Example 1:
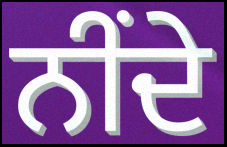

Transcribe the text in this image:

ਨੀਂਦੇ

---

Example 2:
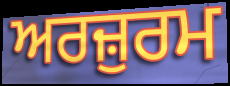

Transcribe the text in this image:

ਅਰਜ਼ੁਰਮ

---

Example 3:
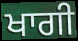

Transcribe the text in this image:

ਖਾਗੀ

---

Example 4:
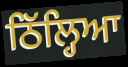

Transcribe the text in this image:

ਠਿੱਲ੍ਹਿਆ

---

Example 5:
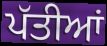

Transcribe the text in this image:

ਪੱਤੀਆਂ